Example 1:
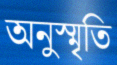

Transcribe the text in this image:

অনুস্মৃতি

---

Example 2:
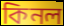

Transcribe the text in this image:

কিনল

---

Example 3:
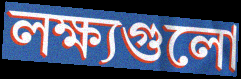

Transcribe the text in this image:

লক্ষ্যগুলো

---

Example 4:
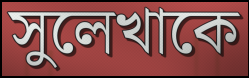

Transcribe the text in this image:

সুলেখাকে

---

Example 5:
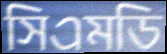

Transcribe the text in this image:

সিএমডি